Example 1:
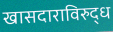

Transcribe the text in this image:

खासदाराविरुद्ध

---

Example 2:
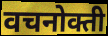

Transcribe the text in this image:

वचनोक्ती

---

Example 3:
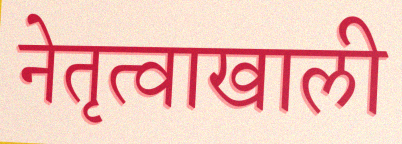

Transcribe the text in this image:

नेतृत्वाखाली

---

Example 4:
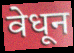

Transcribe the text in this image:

वेधून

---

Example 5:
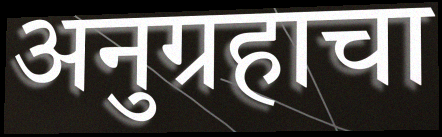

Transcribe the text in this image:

अनुग्रहाचा